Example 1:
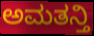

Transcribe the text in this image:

ಅಮತನ್ತಿ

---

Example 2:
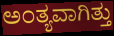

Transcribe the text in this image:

ಅಂತ್ಯವಾಗಿತ್ತು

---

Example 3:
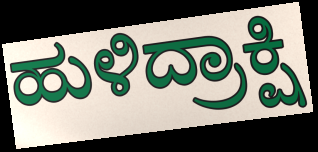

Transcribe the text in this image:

ಹುಳಿದ್ರಾಕ್ಷಿ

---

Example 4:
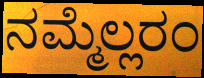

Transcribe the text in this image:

ನಮ್ಮೆಲ್ಲರಂ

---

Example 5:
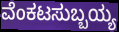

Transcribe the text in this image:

ವೆಂಕಟಸುಬ್ಬಯ್ಯ